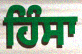
ਹਿੰਸਾ